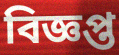
বিজ্ঞপ্ত